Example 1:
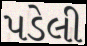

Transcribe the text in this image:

પડેલી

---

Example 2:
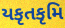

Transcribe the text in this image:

યકૃતકૃમિ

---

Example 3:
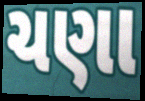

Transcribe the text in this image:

ચણા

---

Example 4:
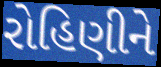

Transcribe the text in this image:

રોહિણીને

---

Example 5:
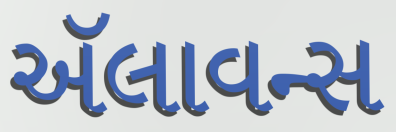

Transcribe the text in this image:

ઍલાવન્સ